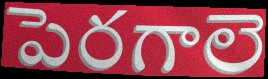
పెరగాలె